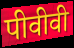
पीवीवी